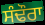
ਸੰਢੌਰਾ